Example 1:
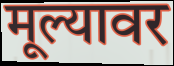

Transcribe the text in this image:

मूल्यावर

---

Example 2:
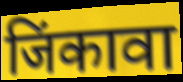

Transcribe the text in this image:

जिंकावा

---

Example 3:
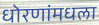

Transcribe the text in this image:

धोरणांमधला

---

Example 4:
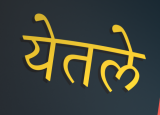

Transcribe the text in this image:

येतले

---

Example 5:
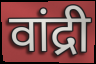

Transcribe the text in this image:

वांद्री